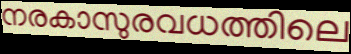
നരകാസുരവധത്തിലെ